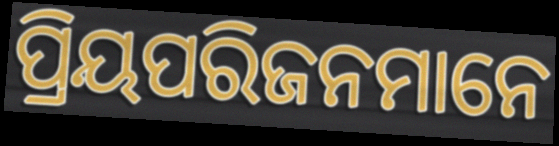
ପ୍ରିୟପରିଜନମାନେ